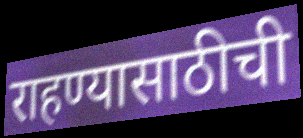
राहण्यासाठीची